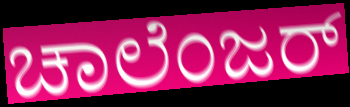
ಚಾಲೆಂಜರ್